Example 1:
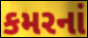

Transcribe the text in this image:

કમરનાં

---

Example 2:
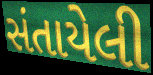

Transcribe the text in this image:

સંતાયેલી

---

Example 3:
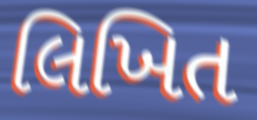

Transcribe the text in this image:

લિખિત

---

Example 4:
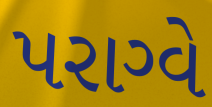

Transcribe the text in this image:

પરાગ્વે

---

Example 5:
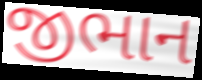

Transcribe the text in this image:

જીભાન